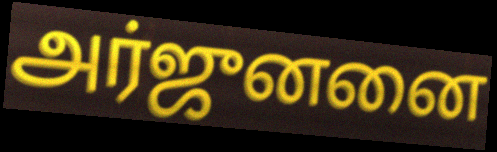
அர்ஜுனனை